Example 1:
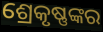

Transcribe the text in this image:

ଶ୍ରେକୃଷ୍ଣଙ୍କର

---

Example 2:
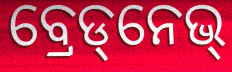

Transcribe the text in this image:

ବ୍ରେଡ୍‌ନେଭ୍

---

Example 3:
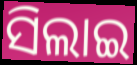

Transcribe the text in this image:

ସିଲାଇ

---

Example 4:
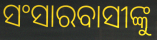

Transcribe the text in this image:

ସଂସାରବାସୀଙ୍କୁ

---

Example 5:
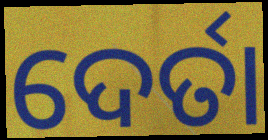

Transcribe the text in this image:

ଦେର୍ତା